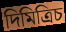
দিমিত্রিচ